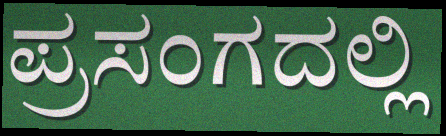
ಪ್ರಸಂಗದಲ್ಲಿ